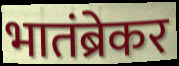
भातंब्रेकर